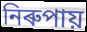
নিৰুপায়